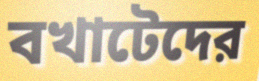
বখাটেদের